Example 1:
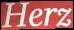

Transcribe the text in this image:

Herz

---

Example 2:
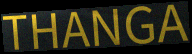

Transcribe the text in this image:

THANGA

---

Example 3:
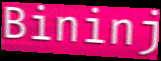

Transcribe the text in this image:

Bininj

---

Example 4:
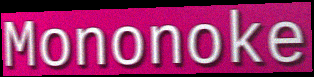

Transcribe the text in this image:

Mononoke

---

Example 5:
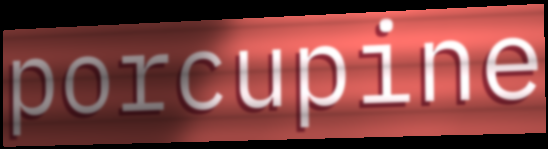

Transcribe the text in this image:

porcupine